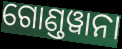
ଗୋଣ୍ଡୱାନା